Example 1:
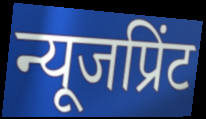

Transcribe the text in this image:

न्यूजप्रिंट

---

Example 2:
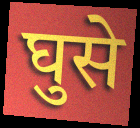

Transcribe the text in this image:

घुसे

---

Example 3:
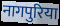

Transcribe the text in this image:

नागपुरिया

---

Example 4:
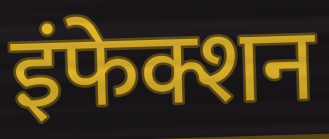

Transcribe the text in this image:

इंफेक्शन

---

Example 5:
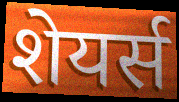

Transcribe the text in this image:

शेयर्स